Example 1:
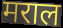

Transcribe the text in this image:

मराल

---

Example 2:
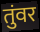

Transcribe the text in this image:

तुंवर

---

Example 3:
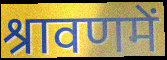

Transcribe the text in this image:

श्रावणमें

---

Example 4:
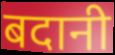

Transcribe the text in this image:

बदानी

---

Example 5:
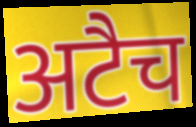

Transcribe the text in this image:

अटैच